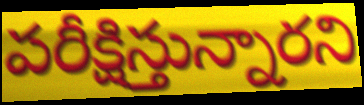
పరీక్షిస్తున్నారని